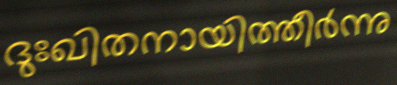
ദുഃഖിതനായിത്തീർന്നു